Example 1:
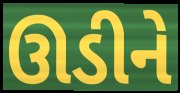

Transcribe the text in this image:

ઊડીને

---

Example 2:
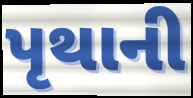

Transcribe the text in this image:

પૃથાની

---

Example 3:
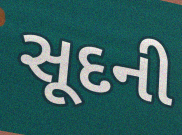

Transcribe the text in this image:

સૂદની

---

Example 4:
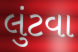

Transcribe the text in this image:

લુંટવા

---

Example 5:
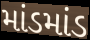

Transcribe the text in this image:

માંડમાંડ